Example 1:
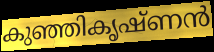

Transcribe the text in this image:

കുഞ്ഞികൃഷ്ണൻ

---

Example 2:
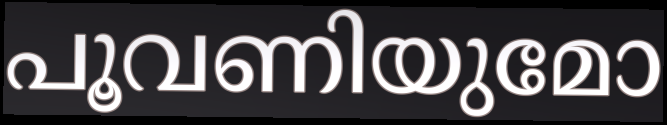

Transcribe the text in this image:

പൂവണിയുമോ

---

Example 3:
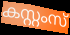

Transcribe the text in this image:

കസ്റ്റംസ്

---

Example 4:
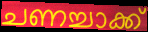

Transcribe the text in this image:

ചണച്ചാക്ക്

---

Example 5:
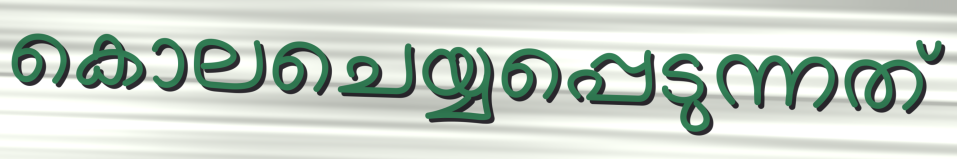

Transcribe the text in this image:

കൊലചെയ്യപ്പെടുന്നത്